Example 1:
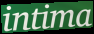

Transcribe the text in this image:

intima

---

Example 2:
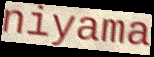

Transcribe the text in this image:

niyama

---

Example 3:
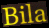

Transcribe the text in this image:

Bila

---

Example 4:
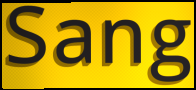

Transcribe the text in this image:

Sang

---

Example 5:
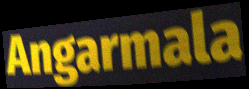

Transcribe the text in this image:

Angarmala